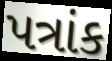
પત્રાંક